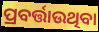
ପ୍ରବର୍ତ୍ତାଉଥିବା